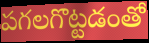
పగలగొట్టడంతో